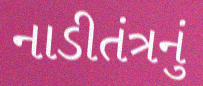
નાડીતંત્રનું